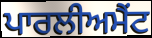
ਪਾਰਲੀਅਮੈਂਟ